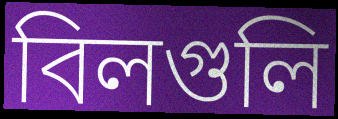
বিলগুলি